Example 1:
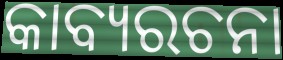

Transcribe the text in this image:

କାବ୍ୟରଚନା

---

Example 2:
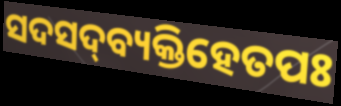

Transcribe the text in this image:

ସଦସଦ୍‌ବ୍ୟକ୍ତିହେତପଃ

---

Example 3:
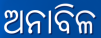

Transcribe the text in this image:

ଅନାବିଳ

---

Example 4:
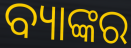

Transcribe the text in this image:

ବ୍ୟାଙ୍କର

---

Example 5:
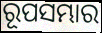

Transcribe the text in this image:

ରୂପସମ୍ଭାର